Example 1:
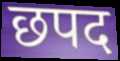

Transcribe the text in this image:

छपद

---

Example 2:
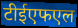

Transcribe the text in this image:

टीईएफएल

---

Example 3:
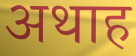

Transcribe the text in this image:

अथाह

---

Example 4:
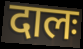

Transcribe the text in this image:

दालः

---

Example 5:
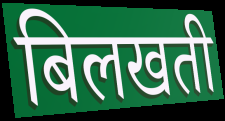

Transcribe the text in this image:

बिलखती